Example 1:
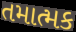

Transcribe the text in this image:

તમાત્મક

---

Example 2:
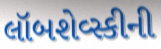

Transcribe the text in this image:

લૉબશેવ્સ્કીની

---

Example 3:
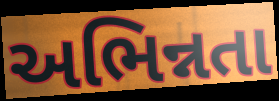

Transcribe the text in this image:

અભિન્નતા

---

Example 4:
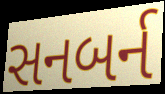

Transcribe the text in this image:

સનબર્ન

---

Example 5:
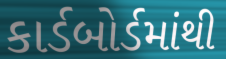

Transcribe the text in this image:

કાર્ડબોર્ડમાંથી